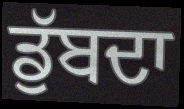
ਡੁੱਬਦਾ